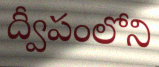
ద్వీపంలోని